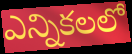
ఎన్నికలలో